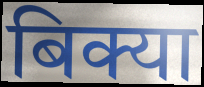
बिक्या